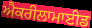
ਐਕਰੀਲਾਮਾਈਡ